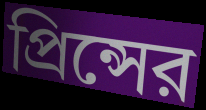
প্রিন্সের